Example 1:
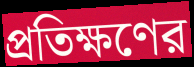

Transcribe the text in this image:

প্রতিক্ষণের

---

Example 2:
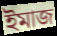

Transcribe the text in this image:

ইমাজ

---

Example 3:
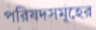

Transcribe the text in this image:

পরিষদসমূহের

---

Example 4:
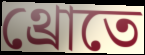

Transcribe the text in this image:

থ্রোতে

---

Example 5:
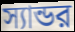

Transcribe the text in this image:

স্যান্ডর